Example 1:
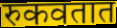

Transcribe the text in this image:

रुकवतात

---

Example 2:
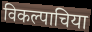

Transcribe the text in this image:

विकल्पाचिया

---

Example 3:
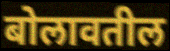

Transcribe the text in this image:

बोलावतील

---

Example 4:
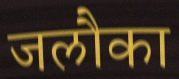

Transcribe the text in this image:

जलौका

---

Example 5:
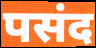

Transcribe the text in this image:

पसंद